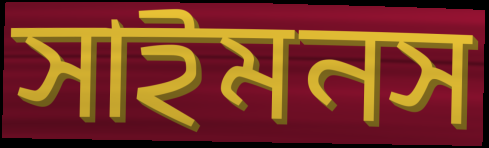
সাইমনস